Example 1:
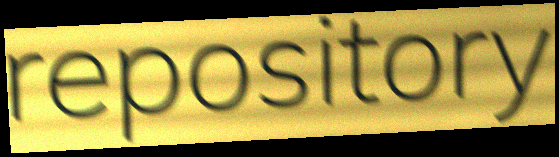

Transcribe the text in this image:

repository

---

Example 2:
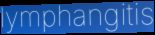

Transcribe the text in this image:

lymphangitis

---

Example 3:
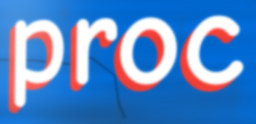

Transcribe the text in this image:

proc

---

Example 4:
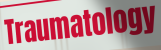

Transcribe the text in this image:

Traumatology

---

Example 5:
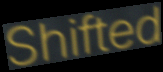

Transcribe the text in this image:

Shifted